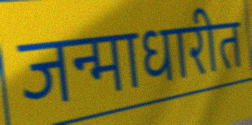
जन्माधारीत